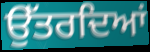
ਉੱਤਰਦਿਆਂ